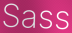
Sass